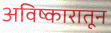
अविष्कारातून